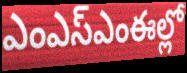
ఎంఎస్ఎంఈల్లో